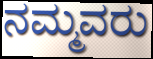
ನಮ್ಮವರು